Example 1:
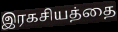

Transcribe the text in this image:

இரகசியத்தை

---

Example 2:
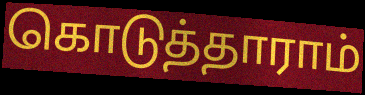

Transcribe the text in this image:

கொடுத்தாராம்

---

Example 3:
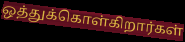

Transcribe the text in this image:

ஒத்துக்கொள்கிறார்கள்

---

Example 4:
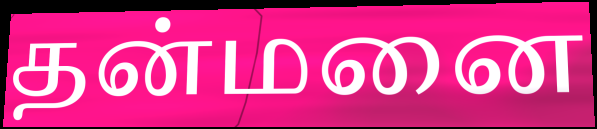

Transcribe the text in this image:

தன்மனை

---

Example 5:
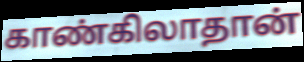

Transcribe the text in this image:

காண்கிலாதான்